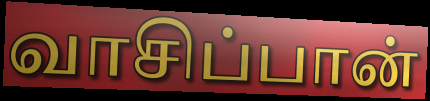
வாசிப்பான்